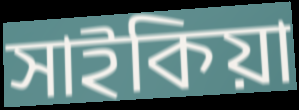
সাইকিয়া